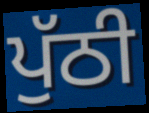
ਪੁੱਠੀ